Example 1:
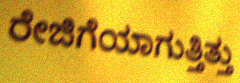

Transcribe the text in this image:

ರೇಜಿಗೆಯಾಗುತ್ತಿತ್ತು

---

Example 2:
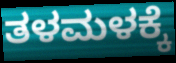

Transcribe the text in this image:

ತಳಮಳಕ್ಕೆ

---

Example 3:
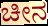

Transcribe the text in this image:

ಚೀನ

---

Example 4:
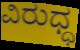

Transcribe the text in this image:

ವಿರುಧ್ಧ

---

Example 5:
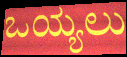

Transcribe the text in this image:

ಒಯ್ಯಲು